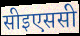
सीइएससी